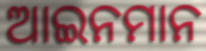
ଆଇନମାନ